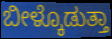
ಬೀಳ್ಕೊಡುತ್ತಾ